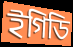
ইগিডি